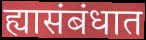
ह्यासंबंधात